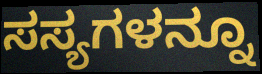
ಸಸ್ಯಗಳನ್ನೂ